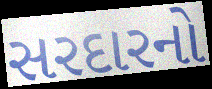
સરદારનો